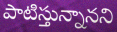
పాటిస్తున్నానని